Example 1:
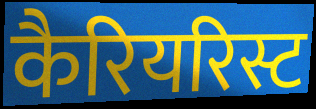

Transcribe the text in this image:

कैरियरिस्ट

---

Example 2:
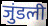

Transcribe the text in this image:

जुंडली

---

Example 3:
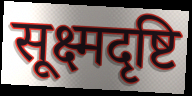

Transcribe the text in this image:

सूक्ष्मदृष्टि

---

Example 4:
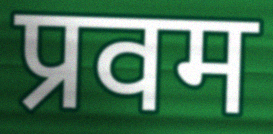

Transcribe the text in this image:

प्रवम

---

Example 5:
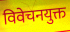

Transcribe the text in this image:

विवेचनयुक्त